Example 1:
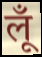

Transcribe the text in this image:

लूँ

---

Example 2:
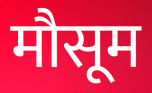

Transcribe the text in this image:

मौसूम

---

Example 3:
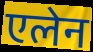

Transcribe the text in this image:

एलेन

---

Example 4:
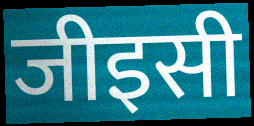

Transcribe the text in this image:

जीइसी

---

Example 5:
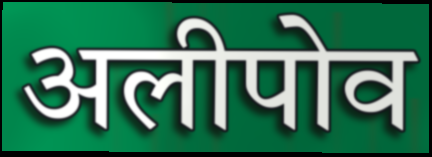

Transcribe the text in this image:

अलीपोव